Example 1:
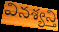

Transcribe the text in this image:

వినశ్యన్తి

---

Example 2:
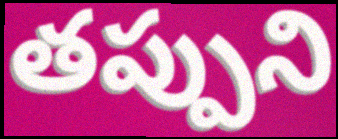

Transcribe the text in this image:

తప్పుని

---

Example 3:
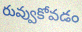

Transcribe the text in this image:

రువ్వుకోవడం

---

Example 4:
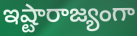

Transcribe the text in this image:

ఇష్టారాజ్యంగా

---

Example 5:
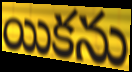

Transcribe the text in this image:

యికను